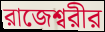
রাজেশ্বরীর